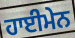
ਹਾਈਮੇਨ